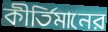
কীর্তিমানের